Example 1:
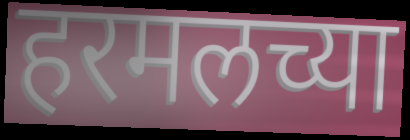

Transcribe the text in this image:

हरमलच्या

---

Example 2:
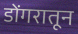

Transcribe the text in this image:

डोंगरातून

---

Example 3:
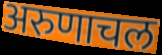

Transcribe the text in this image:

अरुणाचल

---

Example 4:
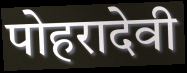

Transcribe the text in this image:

पोहरादेवी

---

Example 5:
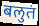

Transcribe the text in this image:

बलुतं